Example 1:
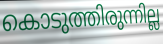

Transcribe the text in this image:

കൊടുത്തിരുന്നില്ല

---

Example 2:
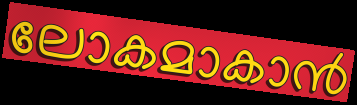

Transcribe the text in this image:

ലോകമാകാൻ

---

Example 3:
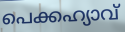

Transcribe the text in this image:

പെക്കഹ്യാവ്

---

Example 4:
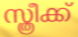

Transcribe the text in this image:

സ്ത്രീക്ക്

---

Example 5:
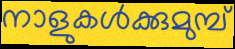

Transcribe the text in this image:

നാളുകൾക്കുമുമ്പ്